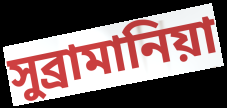
সুব্রামানিয়া